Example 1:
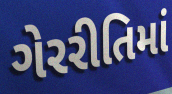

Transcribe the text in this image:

ગેરરીતિમાં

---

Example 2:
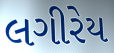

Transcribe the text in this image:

લગીરેય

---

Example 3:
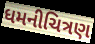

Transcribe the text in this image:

ધમનીચિત્રણ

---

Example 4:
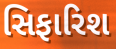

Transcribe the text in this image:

સિફારિશ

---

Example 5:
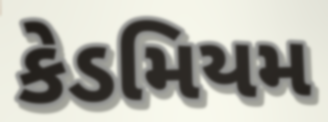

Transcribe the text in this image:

કેડમિયમ